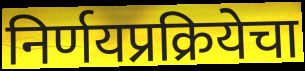
निर्णयप्रक्रियेचा